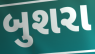
બુશરા